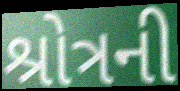
શ્રોત્રની